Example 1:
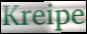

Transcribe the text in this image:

Kreipe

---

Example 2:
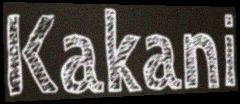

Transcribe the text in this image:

Kakani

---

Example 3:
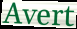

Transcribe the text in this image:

Avert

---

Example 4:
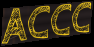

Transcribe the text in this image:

ACCC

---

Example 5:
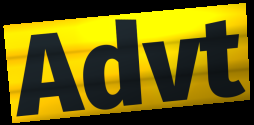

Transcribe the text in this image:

Advt